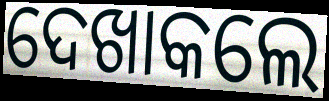
ଦେଖାକଲେ